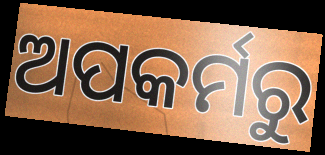
ଅପକର୍ମରୁ